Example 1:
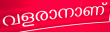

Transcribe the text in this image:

വളരാനാണ്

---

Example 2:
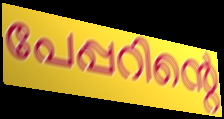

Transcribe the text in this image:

പേപ്പറിന്റെ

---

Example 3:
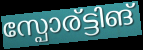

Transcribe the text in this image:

സ്പോര്ട്ടിങ്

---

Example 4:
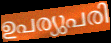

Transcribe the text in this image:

ഉപര്യുപരി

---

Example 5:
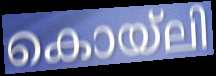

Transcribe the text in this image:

കൊയ്ലി